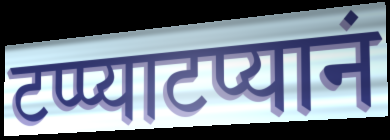
टप्प्याटप्यानं